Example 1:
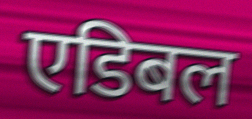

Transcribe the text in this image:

एडिबल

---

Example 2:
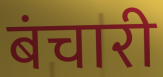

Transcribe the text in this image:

बंचारी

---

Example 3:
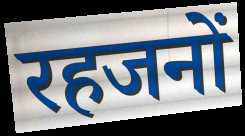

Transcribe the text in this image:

रहजनों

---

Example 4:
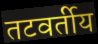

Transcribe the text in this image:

तटवर्तीय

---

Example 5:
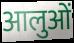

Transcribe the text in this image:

आलुओं